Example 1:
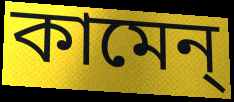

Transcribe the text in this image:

কামেন্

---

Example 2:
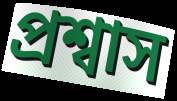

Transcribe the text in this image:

প্রশ্বাস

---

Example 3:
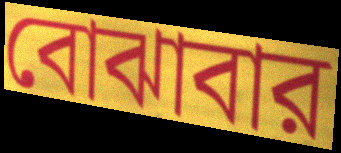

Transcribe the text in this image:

বোঝাবার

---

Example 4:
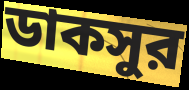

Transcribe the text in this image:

ডাকসুর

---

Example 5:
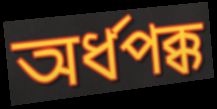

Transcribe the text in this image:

অর্ধপক্ক